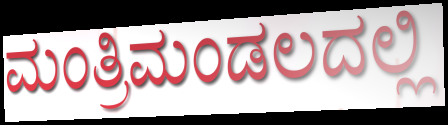
ಮಂತ್ರಿಮಂಡಲದಲ್ಲಿ